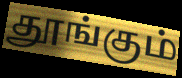
தூங்கும்